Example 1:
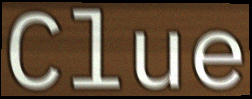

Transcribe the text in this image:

Clue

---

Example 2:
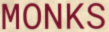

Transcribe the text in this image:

MONKS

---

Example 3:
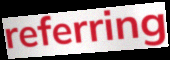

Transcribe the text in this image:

referring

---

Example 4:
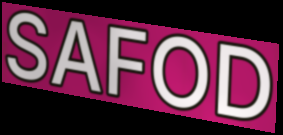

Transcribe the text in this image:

SAFOD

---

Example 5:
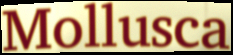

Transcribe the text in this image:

Mollusca